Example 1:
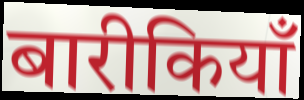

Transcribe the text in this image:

बारीकियाँ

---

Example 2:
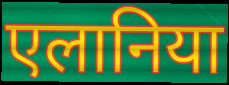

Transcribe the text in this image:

एलानिया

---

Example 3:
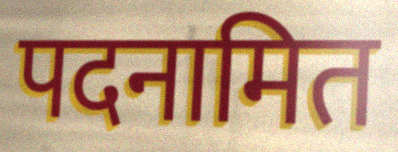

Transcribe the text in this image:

पदनामित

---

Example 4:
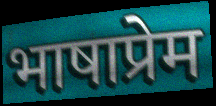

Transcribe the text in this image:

भाषाप्रेम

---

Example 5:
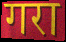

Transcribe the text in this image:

गरा